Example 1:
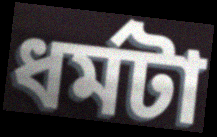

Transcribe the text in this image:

ধর্মটা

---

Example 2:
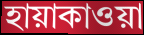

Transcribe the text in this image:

হায়াকাওয়া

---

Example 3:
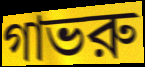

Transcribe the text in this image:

গাভরু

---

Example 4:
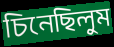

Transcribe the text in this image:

চিনেছিলুম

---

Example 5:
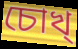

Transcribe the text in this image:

চোখ্